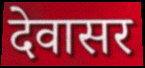
देवासर